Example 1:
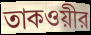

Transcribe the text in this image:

তাকওয়ীর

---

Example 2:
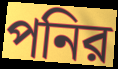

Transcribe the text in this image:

পনির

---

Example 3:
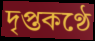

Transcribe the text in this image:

দৃপ্তকণ্ঠে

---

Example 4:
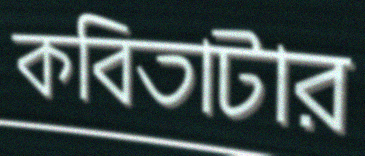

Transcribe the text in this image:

কবিতাটার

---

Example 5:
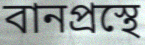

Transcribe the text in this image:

বানপ্রস্থে